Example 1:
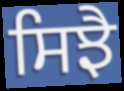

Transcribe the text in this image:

ਸਿਝੈ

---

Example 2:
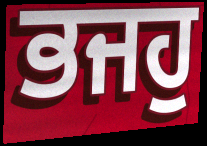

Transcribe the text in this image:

ਭਜਹੁ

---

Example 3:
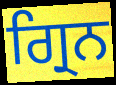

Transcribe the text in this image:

ਗ੍ਰਿਨ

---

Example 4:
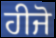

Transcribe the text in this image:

ਹੀਜੋ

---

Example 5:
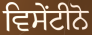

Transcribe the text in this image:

ਵਿਸੇਂਟੀਨੋ